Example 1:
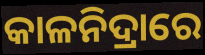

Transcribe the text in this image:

କାଳନିଦ୍ରାରେ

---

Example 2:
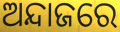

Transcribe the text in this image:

ଅନ୍ଦାଜରେ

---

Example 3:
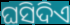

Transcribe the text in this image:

ଘସିଦିଏ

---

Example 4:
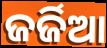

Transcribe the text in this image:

ଜର୍ଜିଆ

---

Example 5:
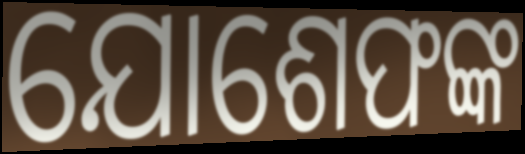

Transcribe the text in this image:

ଯୋଶେଫଙ୍କ